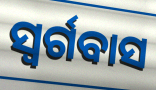
ସ୍ଵର୍ଗବାସ